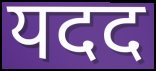
यदद